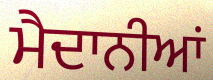
ਮੈਦਾਨੀਆਂ